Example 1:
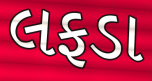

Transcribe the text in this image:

લફડા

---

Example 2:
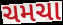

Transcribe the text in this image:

ચમચા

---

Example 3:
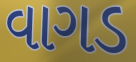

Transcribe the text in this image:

વાગડ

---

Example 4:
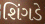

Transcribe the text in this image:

શિંગડે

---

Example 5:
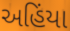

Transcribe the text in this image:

અહિંયા